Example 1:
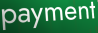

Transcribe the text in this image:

payment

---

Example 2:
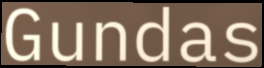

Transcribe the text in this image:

Gundas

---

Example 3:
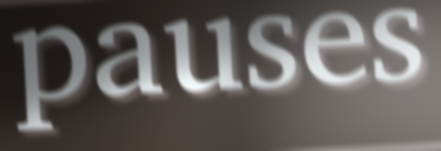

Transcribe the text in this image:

pauses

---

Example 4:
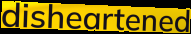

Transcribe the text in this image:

disheartened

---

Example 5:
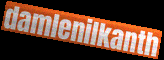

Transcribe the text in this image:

damlenilkanth